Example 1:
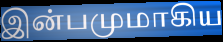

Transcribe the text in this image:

இன்பமுமாகிய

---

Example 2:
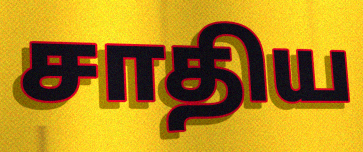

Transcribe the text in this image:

சாதிய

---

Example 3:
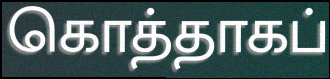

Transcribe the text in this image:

கொத்தாகப்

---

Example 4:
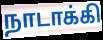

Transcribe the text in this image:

நாடாக்கி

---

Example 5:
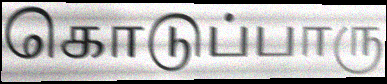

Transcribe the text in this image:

கொடுப்பாரு